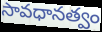
సావధానత్వం